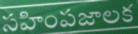
సహింపజాలక